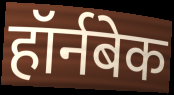
हॉर्नबेक